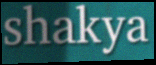
shakya